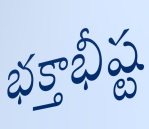
భక్తాభీష్ట